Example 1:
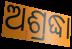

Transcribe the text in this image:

ଅଶ୍ରଦ୍ଧା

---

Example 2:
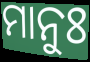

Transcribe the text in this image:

ମାନୁଃ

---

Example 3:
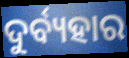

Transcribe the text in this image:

ଦୁର୍ବ୍ୟହାର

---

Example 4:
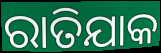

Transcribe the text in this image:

ରାତିଯାକ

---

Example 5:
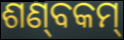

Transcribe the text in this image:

ଶଣ୍‌ବକମ୍